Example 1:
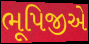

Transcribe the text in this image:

ભૂપિજીએ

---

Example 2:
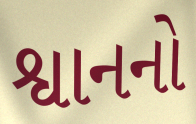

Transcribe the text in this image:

શ્વાનનો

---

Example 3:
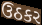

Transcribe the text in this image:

ઉઠકર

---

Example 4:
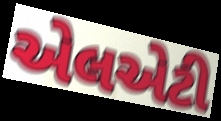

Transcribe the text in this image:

એલએટી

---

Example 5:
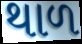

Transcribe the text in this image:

થાળ